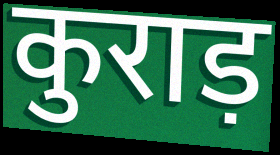
कुराड़